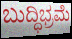
ಬುದ್ಧಿಭ್ರಮೆ